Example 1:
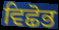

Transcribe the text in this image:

ਵਿਛੋਭ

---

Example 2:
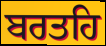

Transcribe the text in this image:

ਬਰਤਹਿ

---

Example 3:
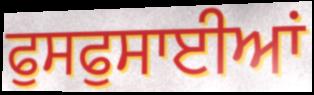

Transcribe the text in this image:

ਫੁਸਫੁਸਾਈਆਂ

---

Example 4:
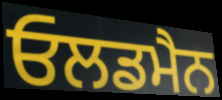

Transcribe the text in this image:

ਓਲਡਮੈਨ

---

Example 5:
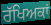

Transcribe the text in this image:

ਰੱਖਿਅਕਾਂ